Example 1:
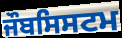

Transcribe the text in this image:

ਜੌਬਸਿਸਟਮ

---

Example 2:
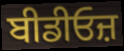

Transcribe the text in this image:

ਬੀਡੀਓਜ਼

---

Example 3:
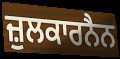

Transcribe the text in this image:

ਜ਼ੁਲਕਾਰਨੈਨ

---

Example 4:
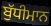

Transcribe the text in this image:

ਬੁੱਧੀਮਾਨ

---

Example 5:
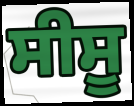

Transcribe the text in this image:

ਸੀਸੂ